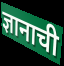
ज्ञानाची